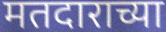
मतदाराच्या